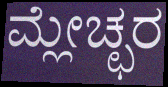
ಮ್ಲೇಚ್ಛರ